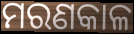
ମରଣକାଳ